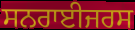
ਸਨਰਾਈਜਰਸ